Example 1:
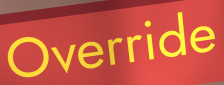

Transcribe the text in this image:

Override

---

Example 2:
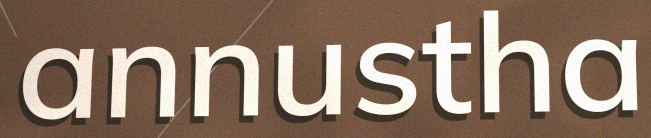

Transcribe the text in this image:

annustha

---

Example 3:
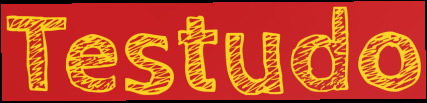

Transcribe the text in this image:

Testudo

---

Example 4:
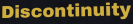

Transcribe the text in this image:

Discontinuity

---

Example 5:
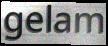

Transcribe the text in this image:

gelam